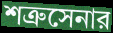
শত্রুসেনার